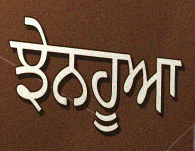
ਝੇਨਹੂਆ